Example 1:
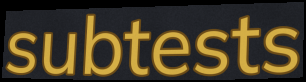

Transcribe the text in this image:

subtests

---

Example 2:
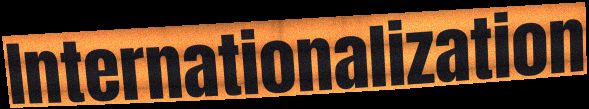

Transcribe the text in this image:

Internationalization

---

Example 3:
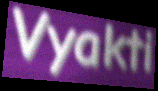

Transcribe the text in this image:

Vyakti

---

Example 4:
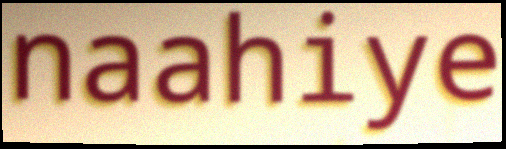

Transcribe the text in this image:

naahiye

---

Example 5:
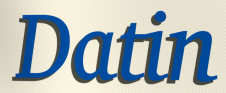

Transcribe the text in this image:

Datin